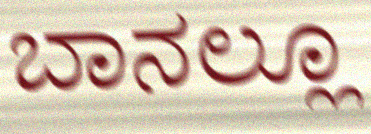
ಬಾನಲ್ಲೂ